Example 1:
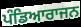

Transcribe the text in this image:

ਪੰਡਿਆਰਾਜਨ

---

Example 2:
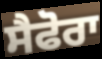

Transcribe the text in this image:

ਸੈਫੋਰਾ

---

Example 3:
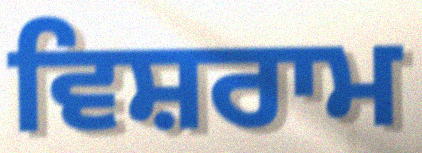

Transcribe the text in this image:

ਵਿਸ਼ਰਾਮ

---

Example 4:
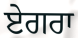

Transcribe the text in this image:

ਏਗਰਾ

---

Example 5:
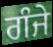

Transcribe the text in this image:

ਗੰਜੇ